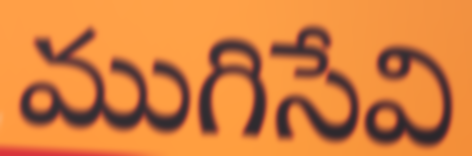
ముగిసేవి